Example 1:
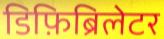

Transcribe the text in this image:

डिफ़िब्रिलेटर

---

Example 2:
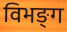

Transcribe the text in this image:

विभङ्ग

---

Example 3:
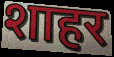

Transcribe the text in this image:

शाहर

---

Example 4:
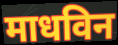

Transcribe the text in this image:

माधविन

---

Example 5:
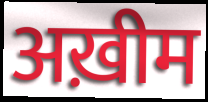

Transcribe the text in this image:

अख़ीम